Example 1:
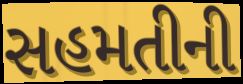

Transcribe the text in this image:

સહમતીની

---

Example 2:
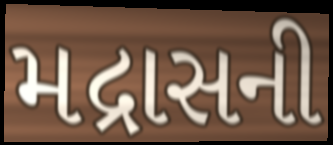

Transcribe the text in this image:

મદ્રાસની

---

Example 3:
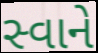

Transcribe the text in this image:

સ્વાને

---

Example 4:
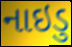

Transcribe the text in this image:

નાઇડુ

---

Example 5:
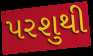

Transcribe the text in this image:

પરશુથી